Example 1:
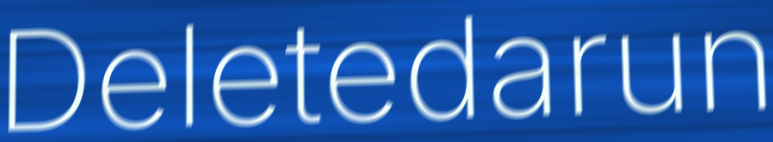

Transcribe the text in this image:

Deletedarun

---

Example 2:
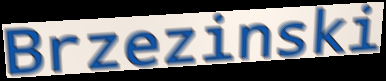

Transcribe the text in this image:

Brzezinski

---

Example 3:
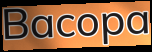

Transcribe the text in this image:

Bacopa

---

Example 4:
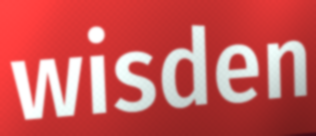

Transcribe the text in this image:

wisden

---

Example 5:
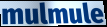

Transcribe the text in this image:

mulmule